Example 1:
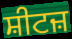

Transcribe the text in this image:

ਸ਼ੀਟਜ਼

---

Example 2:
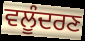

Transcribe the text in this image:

ਵਲੂੰਦਰਣ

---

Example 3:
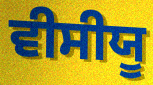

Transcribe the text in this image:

ਵੀਸੀਯੂ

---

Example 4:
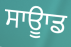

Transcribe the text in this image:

ਸਾਊਾਡ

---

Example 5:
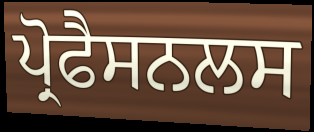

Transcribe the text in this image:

ਪ੍ਰੋਫੈਸਨਲਸ